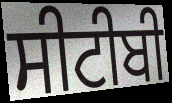
ਸੀਟੀਬੀ